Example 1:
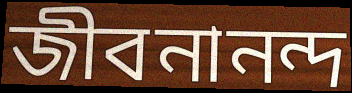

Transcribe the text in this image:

জীবনানন্দ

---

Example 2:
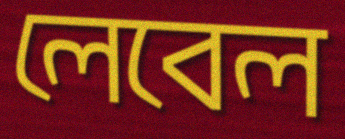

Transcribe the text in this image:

লেবেল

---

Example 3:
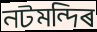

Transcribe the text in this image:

নটমন্দিৰ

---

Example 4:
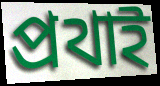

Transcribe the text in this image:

প্ৰথাই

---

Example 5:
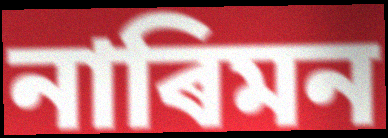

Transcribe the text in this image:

নাৰিমন